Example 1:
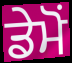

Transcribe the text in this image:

ਡੇਮੋਂ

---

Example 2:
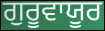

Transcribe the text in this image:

ਗੁਰੂਵਾਯੂਰ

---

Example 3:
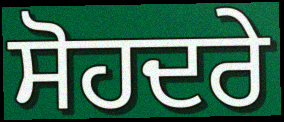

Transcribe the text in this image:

ਸੋਹਦਰੇ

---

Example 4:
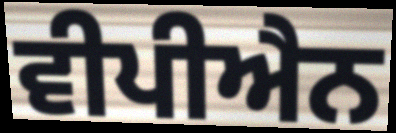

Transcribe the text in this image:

ਵੀਪੀਐਨ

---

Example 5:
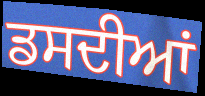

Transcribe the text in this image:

ਡਸਦੀਆਂ